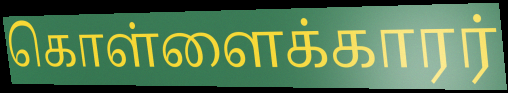
கொள்ளைக்காரர்